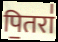
पि॒तरा॑